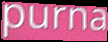
purna